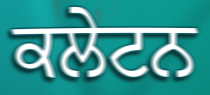
ਕਲੇਟਨ